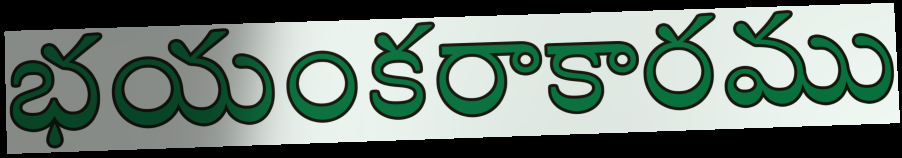
భయంకరాకారము